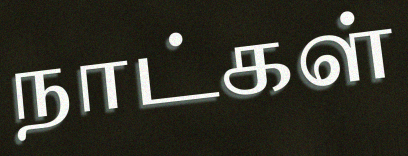
நாட்கள்